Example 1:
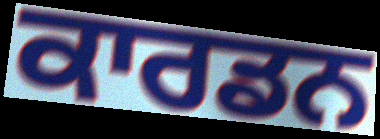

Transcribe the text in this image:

ਕਾਰਡਨ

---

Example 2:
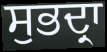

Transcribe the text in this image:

ਸੁਭਦ੍ਰਾ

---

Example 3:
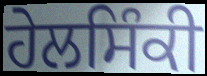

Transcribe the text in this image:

ਹੇਲਸਿੰਕੀ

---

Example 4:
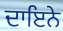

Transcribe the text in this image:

ਦਾਇਨੇ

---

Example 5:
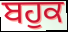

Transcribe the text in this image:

ਬਹੁਕ